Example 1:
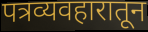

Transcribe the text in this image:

पत्रव्यवहारातून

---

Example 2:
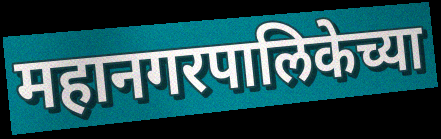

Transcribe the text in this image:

महानगरपालिकेच्या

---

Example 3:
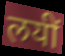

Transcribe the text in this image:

लयीं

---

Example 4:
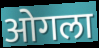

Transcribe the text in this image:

ओगला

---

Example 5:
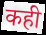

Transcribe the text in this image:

कही